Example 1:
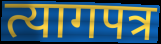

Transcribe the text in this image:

त्यागपत्र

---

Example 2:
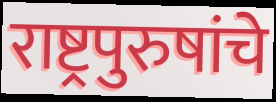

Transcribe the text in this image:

राष्ट्रपुरुषांचे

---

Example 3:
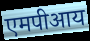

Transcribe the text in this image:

एमपीआय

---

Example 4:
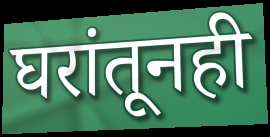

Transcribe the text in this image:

घरांतूनही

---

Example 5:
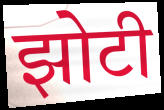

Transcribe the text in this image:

झोटी